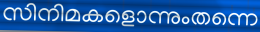
സിനിമകളൊന്നുംതന്നെ